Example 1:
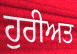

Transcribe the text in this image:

ਹੁਰੀਅਤ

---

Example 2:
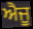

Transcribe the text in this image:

ਐਜੂ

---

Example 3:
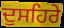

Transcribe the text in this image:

ਦੁਸਹਿਰੇ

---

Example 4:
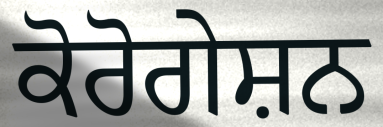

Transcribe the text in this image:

ਕੋਰੋਗੇਸ਼ਨ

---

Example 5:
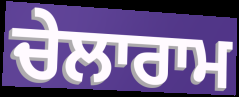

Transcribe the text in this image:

ਚੇਲਾਰਾਮ